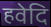
हवेदि